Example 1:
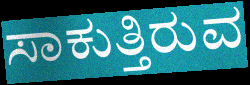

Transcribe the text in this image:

ಸಾಕುತ್ತಿರುವ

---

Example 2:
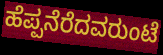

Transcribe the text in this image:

ಹೆಪ್ಪನೆರೆದವರುಂಟೆ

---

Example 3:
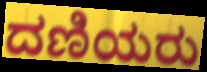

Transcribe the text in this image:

ದಣಿಯರು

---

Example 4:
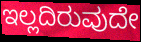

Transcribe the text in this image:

ಇಲ್ಲದಿರುವುದೇ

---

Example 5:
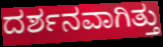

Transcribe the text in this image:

ದರ್ಶನವಾಗಿತ್ತು